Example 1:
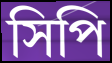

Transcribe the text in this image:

সিপি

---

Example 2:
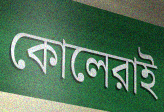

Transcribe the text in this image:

কোলেরাই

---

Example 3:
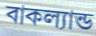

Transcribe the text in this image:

বাকল্যান্ড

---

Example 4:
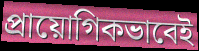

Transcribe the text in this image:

প্রায়োগিকভাবেই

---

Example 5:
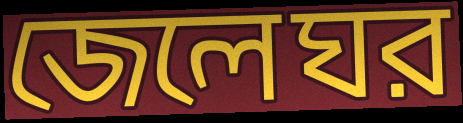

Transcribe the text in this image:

জেলেঘর